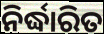
ନିର୍ଦ୍ଧାରିତ